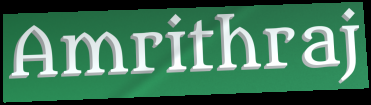
Amrithraj